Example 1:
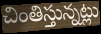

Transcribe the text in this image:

చింతిస్తున్నట్లు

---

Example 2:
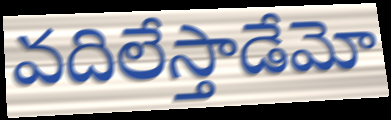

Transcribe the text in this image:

వదిలేస్తాడేమో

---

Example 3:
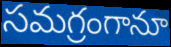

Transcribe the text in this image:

సమగ్రంగానూ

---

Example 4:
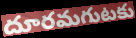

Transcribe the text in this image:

దూరమగుటకు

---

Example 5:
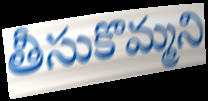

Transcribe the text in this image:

తీసుకొమ్మని